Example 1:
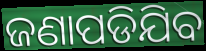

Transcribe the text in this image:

ଜଣାପଡିଯିବ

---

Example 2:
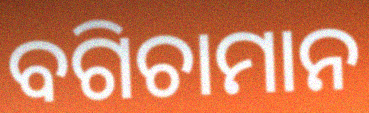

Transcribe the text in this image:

ବଗିଚାମାନ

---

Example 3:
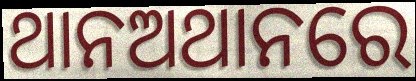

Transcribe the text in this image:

ଥାନଅଥାନରେ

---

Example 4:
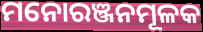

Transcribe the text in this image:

ମନୋରଞ୍ଜନମୂଳକ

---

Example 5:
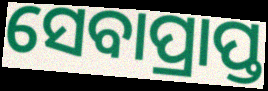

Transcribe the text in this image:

ସେବାପ୍ରାପ୍ତ